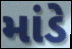
માંડે